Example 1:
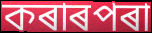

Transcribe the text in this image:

কৰাৰপৰা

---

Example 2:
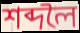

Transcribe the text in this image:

শব্দলৈ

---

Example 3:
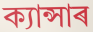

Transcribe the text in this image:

ক্যান্সাৰ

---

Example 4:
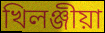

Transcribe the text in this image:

খিলঞ্জীয়া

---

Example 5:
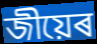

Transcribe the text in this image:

জীয়েৰ